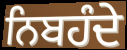
ਨਿਬਹੰਦੇ